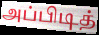
அப்பிடித்